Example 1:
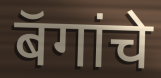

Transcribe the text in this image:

बॅगांचे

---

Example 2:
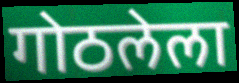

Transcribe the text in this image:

गोठलेला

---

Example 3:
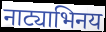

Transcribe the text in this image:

नाट्याभिनय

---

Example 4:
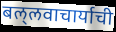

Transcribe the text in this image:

बल्लवाचार्याची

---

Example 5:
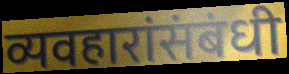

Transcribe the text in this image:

व्यवहारांसंबंधी